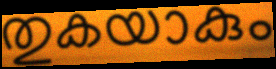
തുകയാകും